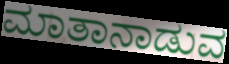
ಮಾತಾನಾಡುವ